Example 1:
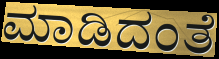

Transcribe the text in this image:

ಮಾಡಿದಂತೆ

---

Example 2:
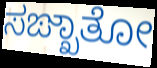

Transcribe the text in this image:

ಸಙ್ಖಾತೋ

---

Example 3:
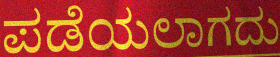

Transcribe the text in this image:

ಪಡೆಯಲಾಗದು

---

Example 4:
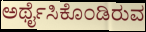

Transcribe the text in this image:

ಅರ್ಥೈಸಿಕೊಂಡಿರುವ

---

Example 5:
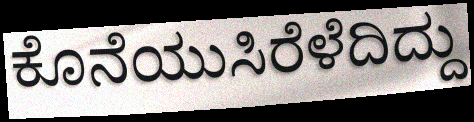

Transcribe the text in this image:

ಕೊನೆಯುಸಿರೆಳೆದಿದ್ದು